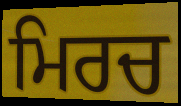
ਮਿਰਚ